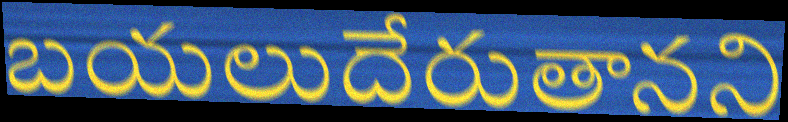
బయలుదేరుతానని